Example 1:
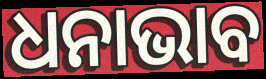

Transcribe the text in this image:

ଧନାଭାବ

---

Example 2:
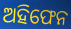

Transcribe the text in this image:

ଅହିଫେନ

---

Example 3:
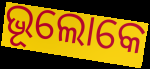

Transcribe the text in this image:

ଭୂଲୋକେ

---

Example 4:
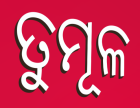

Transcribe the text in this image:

ତୁମୂଳ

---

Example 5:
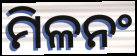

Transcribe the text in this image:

ମିଳନଂ